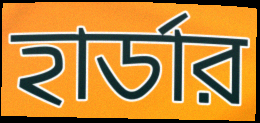
হার্ডার